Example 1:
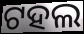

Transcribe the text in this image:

ଟହଲ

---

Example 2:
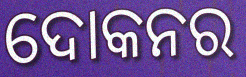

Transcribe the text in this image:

ଦୋକନର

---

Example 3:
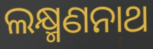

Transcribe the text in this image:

ଲକ୍ଷ୍ମଣନାଥ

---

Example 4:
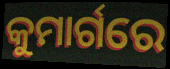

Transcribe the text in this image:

କୁମାର୍ଗରେ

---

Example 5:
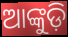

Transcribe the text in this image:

ଆଙ୍କୁଡ଼ି